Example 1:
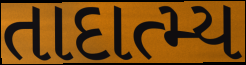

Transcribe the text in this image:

તાદાત્મ્ય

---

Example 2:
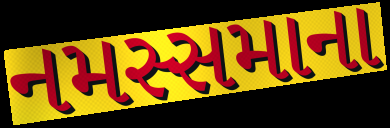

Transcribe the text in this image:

નમસ્સમાના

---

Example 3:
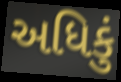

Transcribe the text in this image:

અધિકું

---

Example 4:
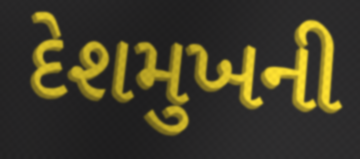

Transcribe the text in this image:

દેશમુખની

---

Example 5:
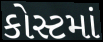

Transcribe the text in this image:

કોસ્ટમાં